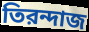
তিরন্দাজ